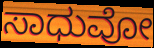
ಸಾಧುವೋ